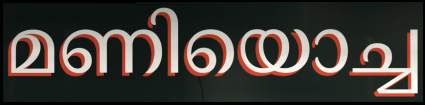
മണിയൊച്ച